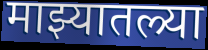
माझ्यातल्या